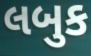
લબુક